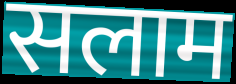
सलाम